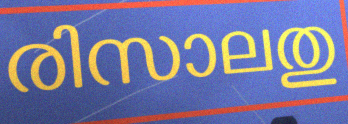
രിസാലതു